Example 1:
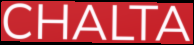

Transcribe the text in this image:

CHALTA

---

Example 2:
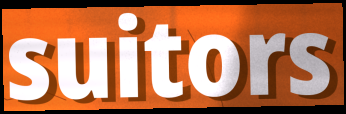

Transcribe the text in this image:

suitors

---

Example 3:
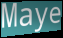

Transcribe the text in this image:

Maye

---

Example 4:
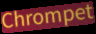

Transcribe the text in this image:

Chrompet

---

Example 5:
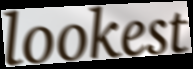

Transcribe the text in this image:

lookest